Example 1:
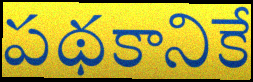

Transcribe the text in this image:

పథకానికే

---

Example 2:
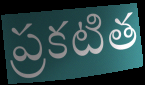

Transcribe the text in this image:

ప్రకటిత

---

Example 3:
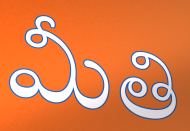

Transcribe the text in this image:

మీతి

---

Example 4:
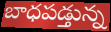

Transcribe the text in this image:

బాధపడ్తున్న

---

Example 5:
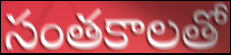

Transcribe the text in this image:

సంతకాలతో